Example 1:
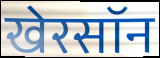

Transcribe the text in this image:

खेरसॉन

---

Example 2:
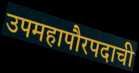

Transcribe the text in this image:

उपमहापौरपदाची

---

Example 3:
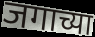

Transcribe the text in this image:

जगाच्या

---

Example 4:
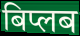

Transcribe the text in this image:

बिप्लब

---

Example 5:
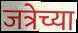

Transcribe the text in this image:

जत्रेच्या